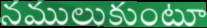
నములుకుంటూ